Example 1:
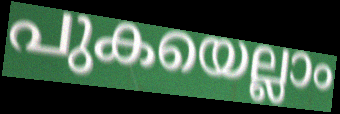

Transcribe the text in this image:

പുകയെല്ലാം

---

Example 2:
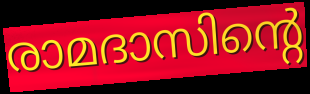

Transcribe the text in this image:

രാമദാസിന്റെ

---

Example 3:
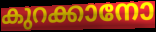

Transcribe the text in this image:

കുറക്കാനോ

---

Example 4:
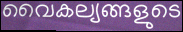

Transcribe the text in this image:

വൈകല്യങ്ങളുടെ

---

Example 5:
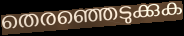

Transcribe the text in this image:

തെരഞ്ഞെടുക്കുക